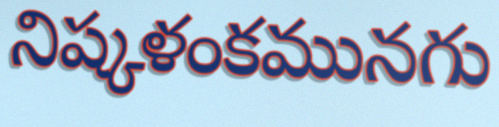
నిష్కళంకమునగు